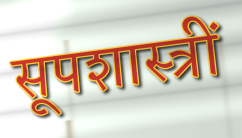
सूपशास्त्रीं